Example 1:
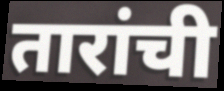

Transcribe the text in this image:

तारांची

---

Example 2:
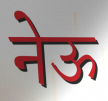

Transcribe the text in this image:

नेऊ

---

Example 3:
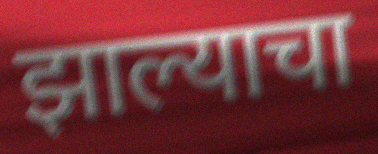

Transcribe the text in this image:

झाल्‍याचा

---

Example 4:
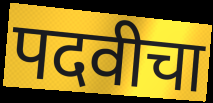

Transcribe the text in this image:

पदवीचा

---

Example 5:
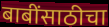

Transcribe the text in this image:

बाबींसाठीचा